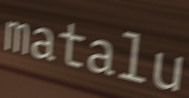
matalu